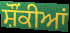
ਸ਼ੌਂਕੀਆਂ